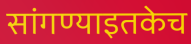
सांगण्याइतकेच